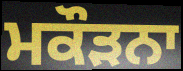
ਮਕੌੜਨਾ